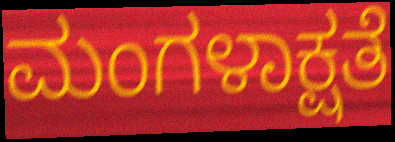
ಮಂಗಳಾಕ್ಷತೆ